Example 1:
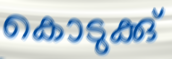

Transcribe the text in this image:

കൊടുക്കു്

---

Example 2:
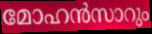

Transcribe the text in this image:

മോഹൻസാറും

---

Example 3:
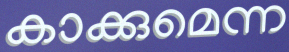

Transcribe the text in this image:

കാക്കുമെന്ന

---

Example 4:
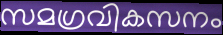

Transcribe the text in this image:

സമഗ്രവികസനം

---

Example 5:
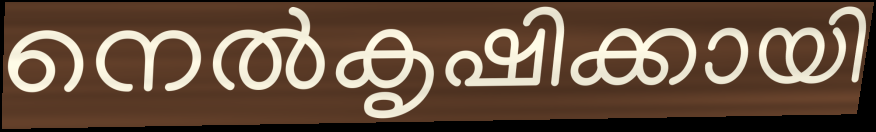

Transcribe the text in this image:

നെൽകൃഷിക്കായി